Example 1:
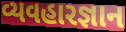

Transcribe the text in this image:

વ્યવહારજ્ઞાન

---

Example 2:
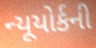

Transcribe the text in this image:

ન્યૂયોર્કની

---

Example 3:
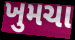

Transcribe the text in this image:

ખુમચા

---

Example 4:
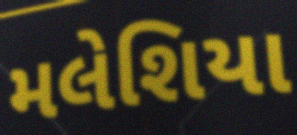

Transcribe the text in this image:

મલેશિયા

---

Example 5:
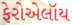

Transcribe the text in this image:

ફેરોએલૉય